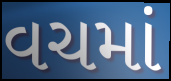
વચમાં